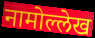
नामोल्लेख